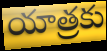
యాత్రకు